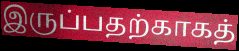
இருப்பதற்காகத்